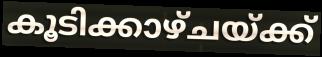
കൂടിക്കാഴ്ചയ്ക്ക്